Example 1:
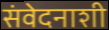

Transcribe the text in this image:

संवेदनाशी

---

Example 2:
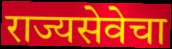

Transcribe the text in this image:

राज्यसेवेचा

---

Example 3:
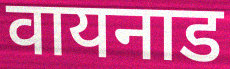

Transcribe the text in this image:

वायनाड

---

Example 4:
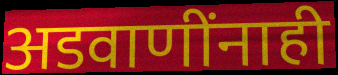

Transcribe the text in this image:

अडवाणींनाही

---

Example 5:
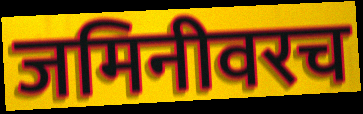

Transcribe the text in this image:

जमिनीवरच